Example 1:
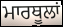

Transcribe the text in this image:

ਮਾਰਥੂਲਾਂ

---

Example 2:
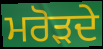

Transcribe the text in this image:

ਮਰੋੜਦੇ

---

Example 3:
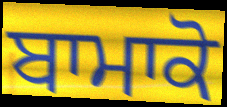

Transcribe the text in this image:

ਬਾਮਾਕੋ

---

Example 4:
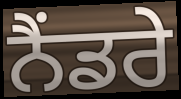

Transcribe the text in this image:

ਨੈਂਡਰੇ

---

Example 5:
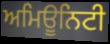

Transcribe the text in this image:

ਅਮਿਊਨਿਟੀ